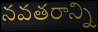
నవతరాన్ని